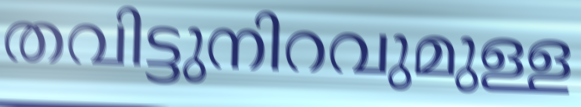
തവിട്ടുനിറവുമുള്ള